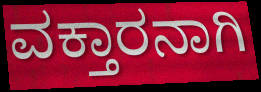
ವಕ್ತಾರನಾಗಿ